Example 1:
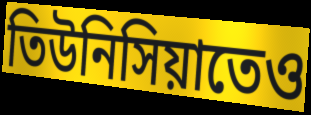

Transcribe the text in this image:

তিউনিসিয়াতেও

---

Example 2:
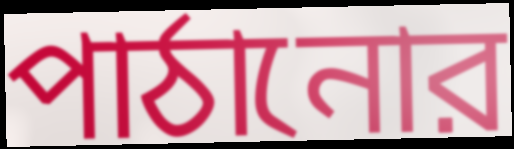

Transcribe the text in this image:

পাঠানোর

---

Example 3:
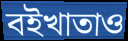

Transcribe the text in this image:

বইখাতাও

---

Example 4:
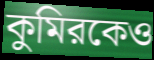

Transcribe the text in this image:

কুমিরকেও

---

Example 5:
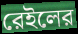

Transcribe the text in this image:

রেইলের